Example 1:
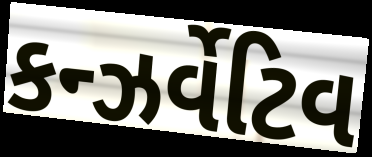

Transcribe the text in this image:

કન્ઝર્વેટિવ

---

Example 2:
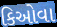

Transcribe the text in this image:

કિઓવા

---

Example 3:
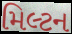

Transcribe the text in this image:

મિલ્ટન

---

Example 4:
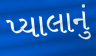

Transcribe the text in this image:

પ્યાલાનું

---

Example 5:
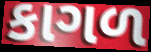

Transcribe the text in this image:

કાગળ